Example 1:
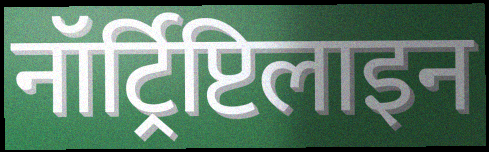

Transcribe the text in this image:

नॉर्ट्रिप्टिलाइन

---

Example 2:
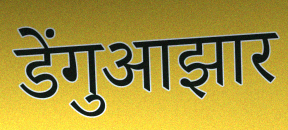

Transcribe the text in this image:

डेंगुआझार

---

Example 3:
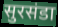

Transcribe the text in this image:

सुरसंडा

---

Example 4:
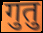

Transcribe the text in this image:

गुतु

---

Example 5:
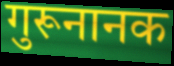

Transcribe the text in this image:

गुरूनानक